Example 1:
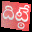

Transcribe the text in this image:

దిట్ఠే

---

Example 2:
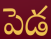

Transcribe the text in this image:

పెడ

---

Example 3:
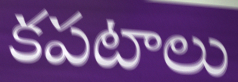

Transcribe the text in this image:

కపటాలు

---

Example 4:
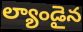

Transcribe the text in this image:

ల్యాండైన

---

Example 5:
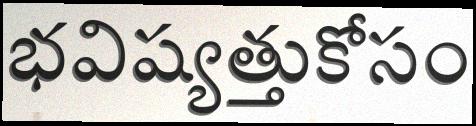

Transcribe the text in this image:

భవిష్యత్తుకోసం